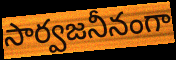
సార్వజనీనంగా